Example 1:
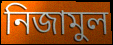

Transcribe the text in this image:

নিজামুল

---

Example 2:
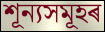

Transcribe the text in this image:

শূন্যসমূহৰ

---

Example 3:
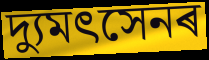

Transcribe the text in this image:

দ্যুমৎসেনৰ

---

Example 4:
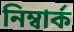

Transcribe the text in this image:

নিম্বাৰ্ক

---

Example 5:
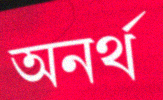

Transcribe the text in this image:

অনৰ্থ